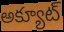
అక్యూట్